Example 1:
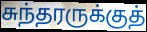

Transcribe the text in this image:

சுந்தரருக்குத்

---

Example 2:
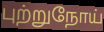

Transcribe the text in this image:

புற்றுநோய்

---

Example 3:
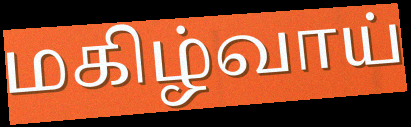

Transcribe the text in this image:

மகிழ்வாய்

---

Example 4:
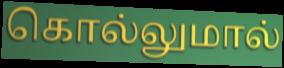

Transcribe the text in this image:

கொல்லுமால்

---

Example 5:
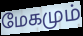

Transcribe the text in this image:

மேகமும்